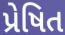
પ્રેષિત